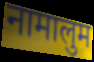
नामालुम